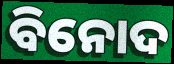
ବିନୋଦ